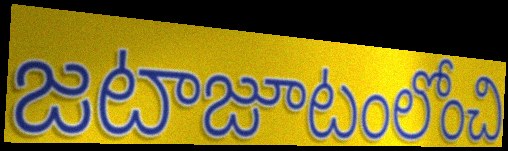
జటాజూటంలోంచి